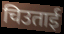
चिउताई